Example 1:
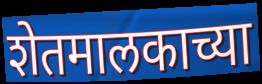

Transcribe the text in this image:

शेतमालकाच्या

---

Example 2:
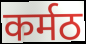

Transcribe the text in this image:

कर्मठ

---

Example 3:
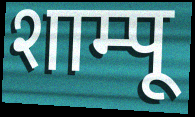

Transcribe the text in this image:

शाम्पू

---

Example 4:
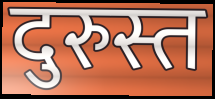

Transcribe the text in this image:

दुरुस्त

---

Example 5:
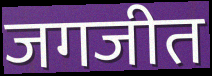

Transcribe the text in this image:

जगजीत